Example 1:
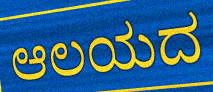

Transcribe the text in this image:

ಆಲಯದ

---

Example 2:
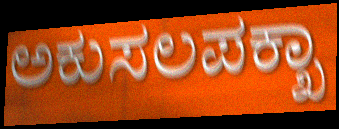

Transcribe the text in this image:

ಅಕುಸಲಪಕ್ಖಾ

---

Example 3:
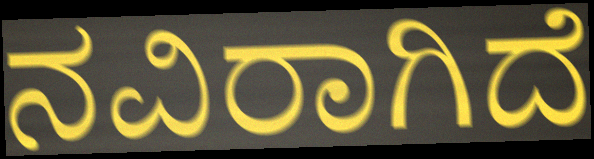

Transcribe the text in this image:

ನವಿರಾಗಿದೆ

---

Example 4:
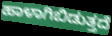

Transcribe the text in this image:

ಹಾಳಾಗಿಬಿಡುತ್ತದೆ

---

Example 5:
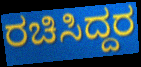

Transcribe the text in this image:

ರಚಿಸಿದ್ದರ